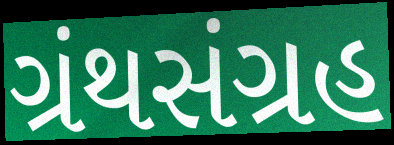
ગ્રંથસંગ્રહ